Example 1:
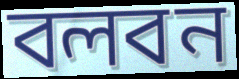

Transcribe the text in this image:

বলবন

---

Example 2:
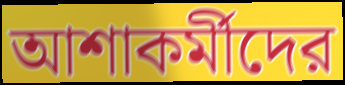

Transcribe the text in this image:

আশাকর্মীদের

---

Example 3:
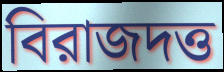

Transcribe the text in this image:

বিরাজদত্ত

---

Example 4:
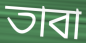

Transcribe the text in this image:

তাবা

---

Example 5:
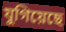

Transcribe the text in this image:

যুগিয়েছে